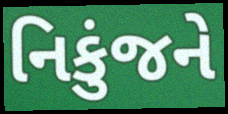
નિકુંજને